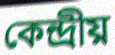
কেন্দ্রীয়